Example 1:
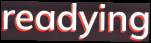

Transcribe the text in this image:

readying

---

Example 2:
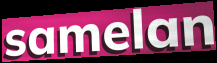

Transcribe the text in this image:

samelan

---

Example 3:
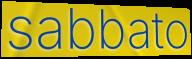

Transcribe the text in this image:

sabbato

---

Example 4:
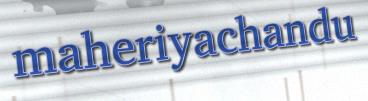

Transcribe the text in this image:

maheriyachandu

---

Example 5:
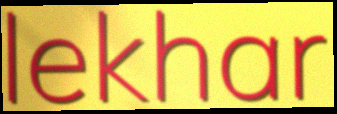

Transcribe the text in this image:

lekhar